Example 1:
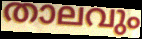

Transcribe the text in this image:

താലവും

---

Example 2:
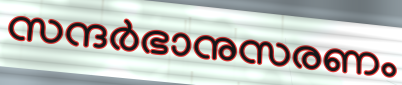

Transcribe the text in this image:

സന്ദർഭാനുസരണം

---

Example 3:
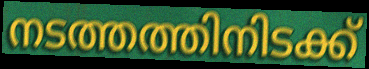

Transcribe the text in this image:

നടത്തത്തിനിടക്ക്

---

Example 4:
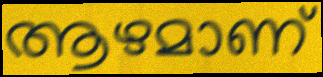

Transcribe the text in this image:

ആഴമാണ്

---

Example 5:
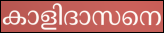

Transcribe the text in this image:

കാളിദാസനെ